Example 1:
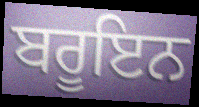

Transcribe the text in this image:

ਬਰੂਇਨ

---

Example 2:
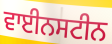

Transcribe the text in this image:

ਵਾਈਨਸਟੀਨ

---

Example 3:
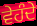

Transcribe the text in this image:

ਵੇਹੰਦੇ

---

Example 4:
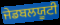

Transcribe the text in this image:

ਜੇਡਬਲਯੂਟੀ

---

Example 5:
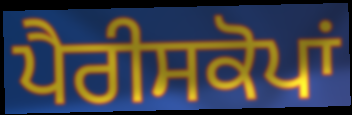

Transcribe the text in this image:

ਪੈਰੀਸਕੋਪਾਂ